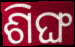
ଶିଙ୍ଘ